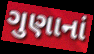
ગુણાનાં